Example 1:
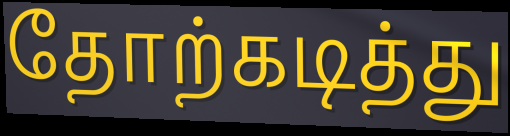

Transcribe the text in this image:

தோற்கடித்து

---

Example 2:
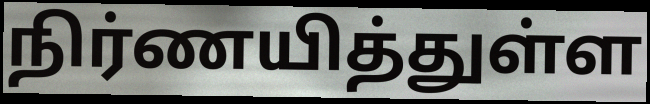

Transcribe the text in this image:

நிர்ணயித்துள்ள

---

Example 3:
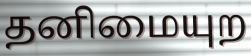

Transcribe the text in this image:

தனிமையுற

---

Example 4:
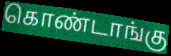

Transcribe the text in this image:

கொண்டாங்கு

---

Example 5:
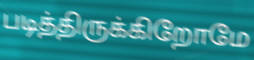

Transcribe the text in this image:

படித்திருக்கிறோமே